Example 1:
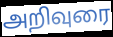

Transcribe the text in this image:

அறிவுரை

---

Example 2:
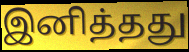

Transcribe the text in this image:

இனித்தது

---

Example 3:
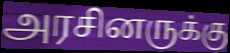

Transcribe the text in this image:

அரசினருக்கு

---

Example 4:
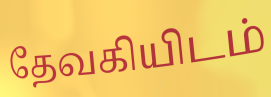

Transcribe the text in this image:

தேவகியிடம்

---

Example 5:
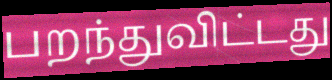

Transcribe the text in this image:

பறந்துவிட்டது